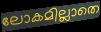
ലോകമില്ലാതെ